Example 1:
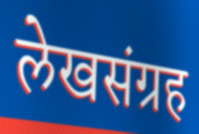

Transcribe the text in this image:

लेखसंग्रह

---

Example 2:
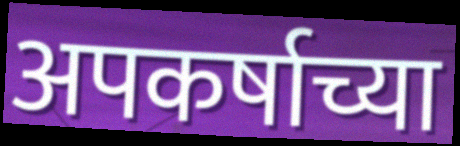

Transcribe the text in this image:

अपकर्षाच्या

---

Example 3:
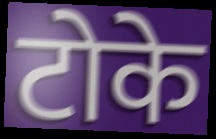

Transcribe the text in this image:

टोके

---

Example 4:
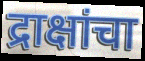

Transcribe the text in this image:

द्राक्षांचा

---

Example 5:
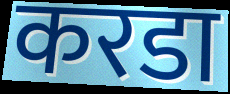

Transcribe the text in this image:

करडा